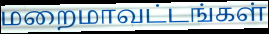
மறைமாவட்டங்கள்